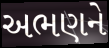
અભણને